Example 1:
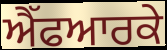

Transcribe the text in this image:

ਐੱਫਆਰਕੇ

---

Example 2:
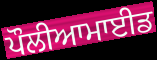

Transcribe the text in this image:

ਪੌਲੀਆਮਾਈਡ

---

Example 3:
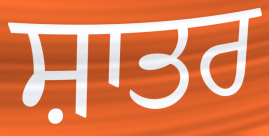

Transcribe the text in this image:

ਸ਼ਾਤਰ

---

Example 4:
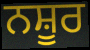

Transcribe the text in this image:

ਨਸ਼ੂਰ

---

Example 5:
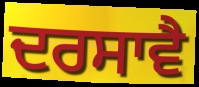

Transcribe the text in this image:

ਦਰਸਾਵੈ